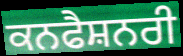
ਕਨਫੈਸ਼ਨਰੀ